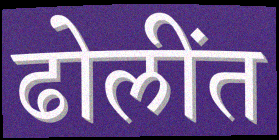
ढोलींत